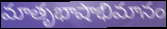
మాతృభాషాభిమానం